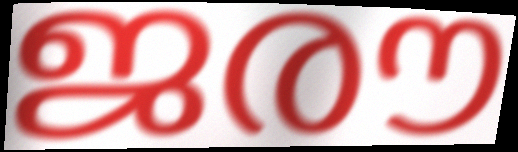
ജരൗ